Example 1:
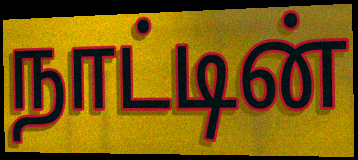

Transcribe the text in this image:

நாட்டின்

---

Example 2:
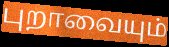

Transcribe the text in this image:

புறாவையும்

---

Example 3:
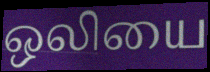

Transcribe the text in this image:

ஒலியை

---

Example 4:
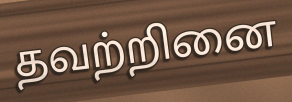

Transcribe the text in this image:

தவற்றினை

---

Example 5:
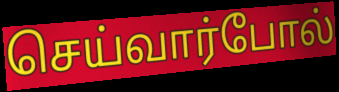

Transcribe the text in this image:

செய்வார்போல்